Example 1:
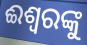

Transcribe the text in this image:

ଈଶ୍ଵରଙ୍କୁ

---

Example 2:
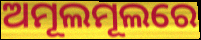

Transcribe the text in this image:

ଅମୂଲମୂଲରେ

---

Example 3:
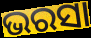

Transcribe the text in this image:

ଭରସା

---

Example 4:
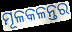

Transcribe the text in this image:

ମୂଳକଳନ୍ତର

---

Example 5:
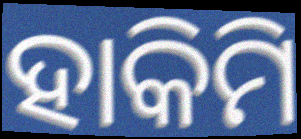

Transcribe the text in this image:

ହାକିମି